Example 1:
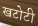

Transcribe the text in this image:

खटोटी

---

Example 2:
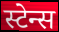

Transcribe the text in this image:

स्टेन्स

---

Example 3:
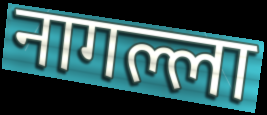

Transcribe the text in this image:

नागल्ला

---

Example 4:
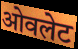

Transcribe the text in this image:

ओवलेट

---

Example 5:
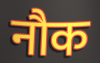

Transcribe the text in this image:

नौक